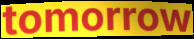
tomorrow